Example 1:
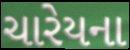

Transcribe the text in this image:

ચારેયના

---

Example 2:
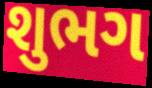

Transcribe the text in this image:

શુભગ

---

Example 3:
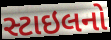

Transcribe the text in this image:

સ્ટાઇલનો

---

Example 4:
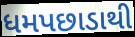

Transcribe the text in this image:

ધમપછાડાથી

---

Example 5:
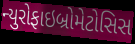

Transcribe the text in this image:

ન્યુરોફાઇબ્રોમેટોસિસ